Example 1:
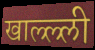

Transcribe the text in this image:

खाल्ल्ली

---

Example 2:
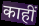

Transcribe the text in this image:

काहीं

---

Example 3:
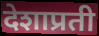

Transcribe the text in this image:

देशाप्रती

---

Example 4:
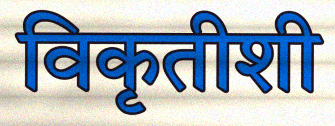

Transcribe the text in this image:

विकृतीशी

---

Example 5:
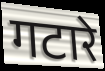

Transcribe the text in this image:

गटारे